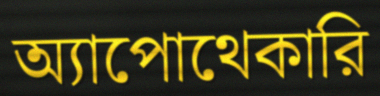
অ্যাপোথেকারি